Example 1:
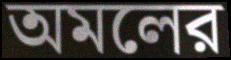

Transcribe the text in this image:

অমলের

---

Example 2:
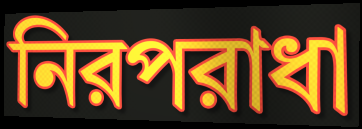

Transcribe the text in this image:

নিরপরাধা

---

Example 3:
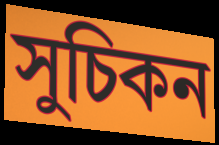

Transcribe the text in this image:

সুচিকন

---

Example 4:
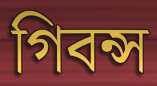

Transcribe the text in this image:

গিবন্স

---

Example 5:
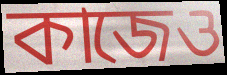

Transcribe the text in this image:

কাজেও